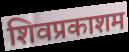
शिवप्रकाशम